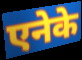
एनेके